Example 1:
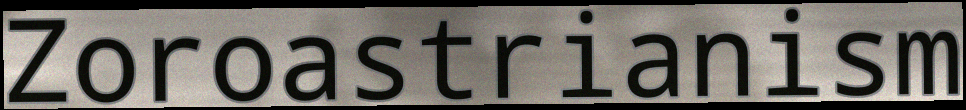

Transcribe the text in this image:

Zoroastrianism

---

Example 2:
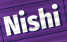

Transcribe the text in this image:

Nishi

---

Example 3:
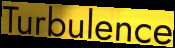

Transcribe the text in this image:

Turbulence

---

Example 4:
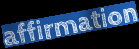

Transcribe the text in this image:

affirmation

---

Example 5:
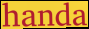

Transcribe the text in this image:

handa